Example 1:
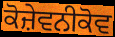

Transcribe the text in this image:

ਕੋਜ਼ੇਵਨੀਕੋਵ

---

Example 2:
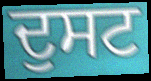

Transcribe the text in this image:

ਦੁਸਟ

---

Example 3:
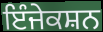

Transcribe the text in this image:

ਇੰਜੇਕਸ਼ਨ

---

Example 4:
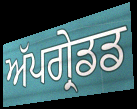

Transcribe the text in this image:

ਅੱਪਗ੍ਰੇਡਡ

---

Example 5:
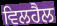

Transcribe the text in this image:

ਵਿਲਹੈਲ